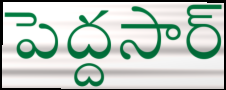
పెద్దసార్